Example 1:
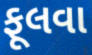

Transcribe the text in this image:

ફૂલવા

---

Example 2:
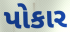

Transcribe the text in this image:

પોકાર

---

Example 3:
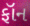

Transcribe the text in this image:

ફૉન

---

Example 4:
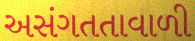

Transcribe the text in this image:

અસંગતતાવાળી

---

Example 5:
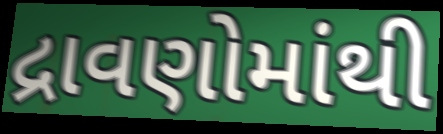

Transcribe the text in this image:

દ્રાવણોમાંથી